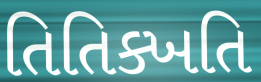
તિતિક્ખતિ